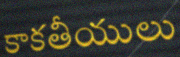
కాకతీయులు